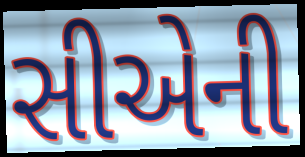
સીએની